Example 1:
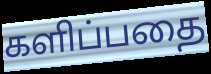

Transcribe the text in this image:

களிப்பதை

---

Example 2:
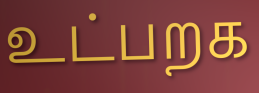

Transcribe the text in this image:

உட்பறக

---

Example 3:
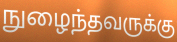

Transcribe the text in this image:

நுழைந்தவருக்கு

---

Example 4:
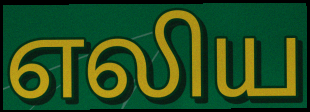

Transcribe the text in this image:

எலிய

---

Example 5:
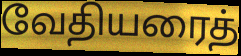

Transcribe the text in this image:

வேதியரைத்